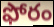
ఫోరం